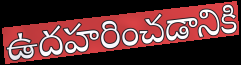
ఉదహరించడానికి